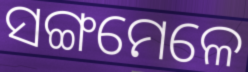
ସଙ୍ଗମେଳେ